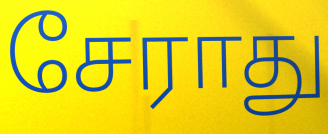
சேராது